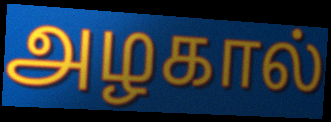
அழகால்